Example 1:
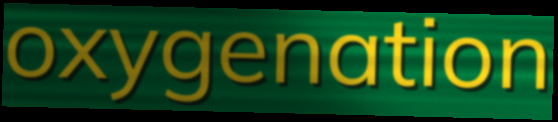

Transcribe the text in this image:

oxygenation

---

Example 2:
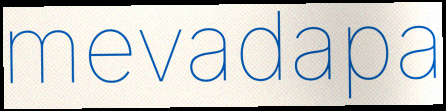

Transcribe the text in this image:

mevadapa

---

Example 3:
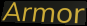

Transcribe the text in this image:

Armor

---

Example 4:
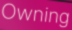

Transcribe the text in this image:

Owning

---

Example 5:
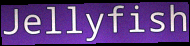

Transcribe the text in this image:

Jellyfish